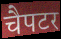
चैपटर